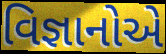
વિજ્ઞાનોએ